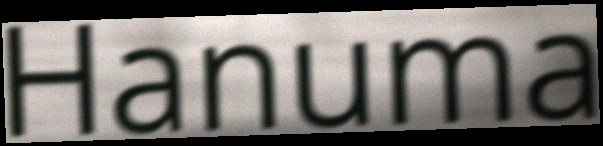
Hanuma